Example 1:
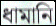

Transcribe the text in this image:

ধামানি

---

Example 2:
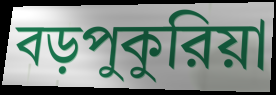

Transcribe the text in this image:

বড়পুকুরিয়া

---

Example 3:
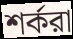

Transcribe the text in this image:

শর্করা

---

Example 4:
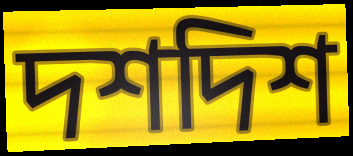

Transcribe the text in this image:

দশদিশ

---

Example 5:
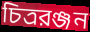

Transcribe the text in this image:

চিত্ররঞ্জন